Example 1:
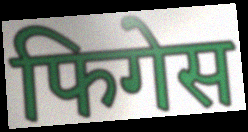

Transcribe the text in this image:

फिगेस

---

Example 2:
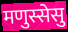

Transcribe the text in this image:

मणुस्सेसु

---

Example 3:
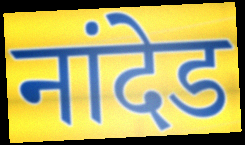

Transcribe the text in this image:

नांदेड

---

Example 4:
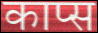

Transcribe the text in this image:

काप्स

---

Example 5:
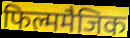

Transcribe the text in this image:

फिल्ममैजिक